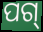
ପଗ୍